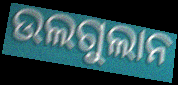
ଉଲଗୁଲାନ